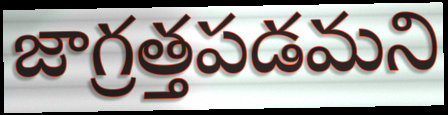
జాగ్రత్తపడమని